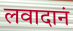
लवादानं